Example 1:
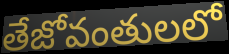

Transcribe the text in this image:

తేజోవంతులలో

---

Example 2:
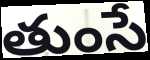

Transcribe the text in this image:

తుంసే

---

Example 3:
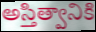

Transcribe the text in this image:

అస్తిత్వానికి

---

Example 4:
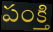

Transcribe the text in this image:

పంక్తి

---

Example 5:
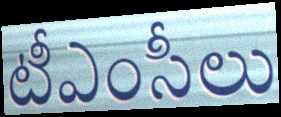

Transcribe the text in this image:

టీఎంసీలు